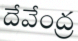
దేవేంద్ర